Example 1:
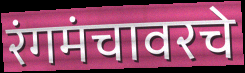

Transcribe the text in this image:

रंगमंचावरचे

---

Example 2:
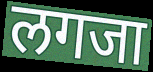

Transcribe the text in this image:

लगजा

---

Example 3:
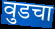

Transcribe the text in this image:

वुडचा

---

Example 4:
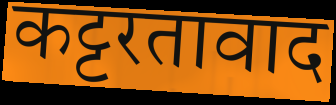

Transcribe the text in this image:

कट्टरतावाद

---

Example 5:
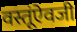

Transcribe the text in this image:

वस्तूंऐवजी